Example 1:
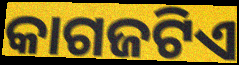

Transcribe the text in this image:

କାଗଜଟିଏ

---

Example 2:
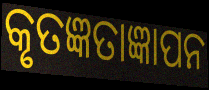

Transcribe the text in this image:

କୃତଜ୍ଞତାଜ୍ଞାପନ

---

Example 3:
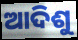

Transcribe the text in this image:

ଆଦିଶୁ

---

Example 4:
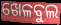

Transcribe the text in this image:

ଖେଳବୁଲ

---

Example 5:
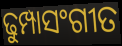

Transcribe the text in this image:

ଢୁମ୍ପାସଂଗୀତ